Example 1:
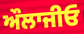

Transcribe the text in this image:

ਔਲਾਜੀਓ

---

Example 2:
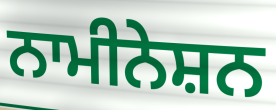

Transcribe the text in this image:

ਨਾਮੀਨੇਸ਼ਨ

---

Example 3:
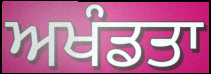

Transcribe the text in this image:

ਅਖੰਡਤਾ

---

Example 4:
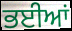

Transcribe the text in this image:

ਭਈਆਂ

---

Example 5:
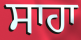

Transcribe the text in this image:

ਸਾਹਾ